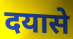
दयासे